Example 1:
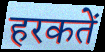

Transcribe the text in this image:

हरकतें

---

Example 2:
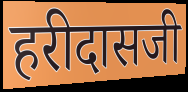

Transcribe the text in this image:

हरीदासजी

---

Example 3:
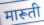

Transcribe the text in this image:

मारूती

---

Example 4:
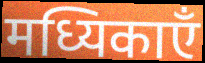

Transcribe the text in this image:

मध्यिकाएँ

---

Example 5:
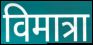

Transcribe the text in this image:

विमात्रा